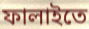
ফালাইতে